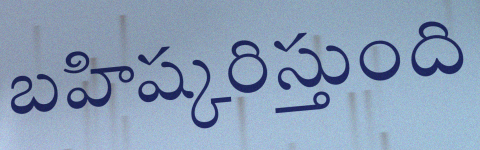
బహిష్కరిస్తుంది